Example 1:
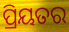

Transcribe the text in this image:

ପ୍ରିୟତର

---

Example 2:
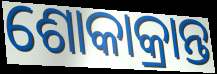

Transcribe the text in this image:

ଶୋକାକ୍ରାନ୍ତ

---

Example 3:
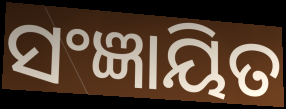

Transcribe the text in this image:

ସଂଜ୍ଞାୟିତ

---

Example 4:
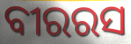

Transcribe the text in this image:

ବୀରରସ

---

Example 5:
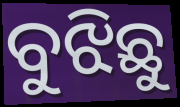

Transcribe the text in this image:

ବୁଝିଛୁ